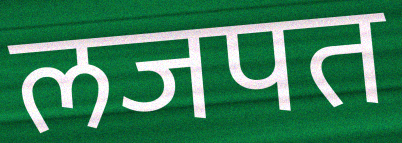
लजपत